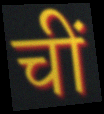
चीं